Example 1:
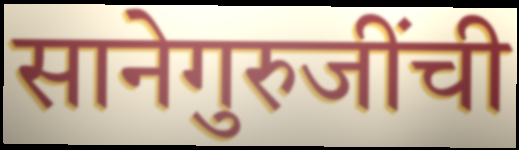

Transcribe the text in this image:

सानेगुरुजींची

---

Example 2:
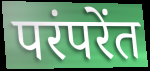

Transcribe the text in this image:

परंपरेंत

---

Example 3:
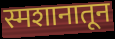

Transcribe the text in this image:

स्मशानातून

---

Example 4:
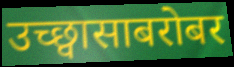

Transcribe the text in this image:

उच्छ्वासाबरोबर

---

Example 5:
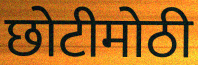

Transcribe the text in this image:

छोटीमोठी